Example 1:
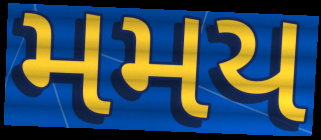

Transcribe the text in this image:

મમય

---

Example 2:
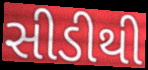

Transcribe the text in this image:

સીડીથી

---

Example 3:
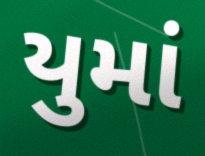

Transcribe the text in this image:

યુમાં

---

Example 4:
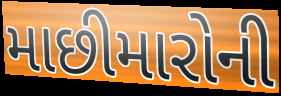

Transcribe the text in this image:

માછીમારોની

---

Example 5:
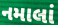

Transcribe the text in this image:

નમાલાં